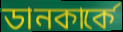
ডানকার্কে